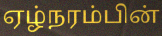
ஏழ்நரம்பின்